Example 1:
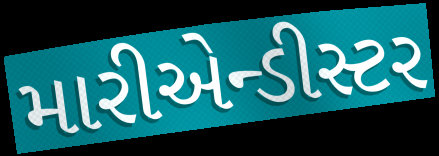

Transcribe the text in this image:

મારીએન્ડીસ્ટર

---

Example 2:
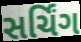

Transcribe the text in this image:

સર્ચિંગ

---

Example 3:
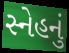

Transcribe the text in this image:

સ્નેહનું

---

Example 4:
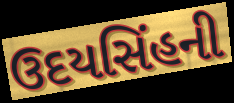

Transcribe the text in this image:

ઉદયસિંહની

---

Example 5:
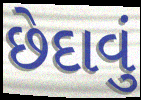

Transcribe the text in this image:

છેદાવું